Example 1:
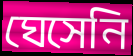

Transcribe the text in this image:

ঘেসেনি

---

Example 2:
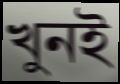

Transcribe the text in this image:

খুনই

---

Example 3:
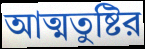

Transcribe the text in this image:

আত্মতুষ্টির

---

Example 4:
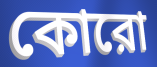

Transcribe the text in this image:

কোরো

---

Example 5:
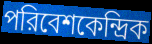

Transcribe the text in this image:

পরিবেশকেন্দ্রিক